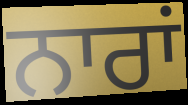
ਨਾਰਾਂ